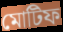
মোটিফ